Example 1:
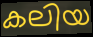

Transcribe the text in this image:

കലിയ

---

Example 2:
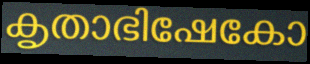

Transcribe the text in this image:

കൃതാഭിഷേകോ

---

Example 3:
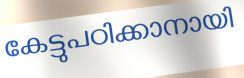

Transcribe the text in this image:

കേട്ടുപഠിക്കാനായി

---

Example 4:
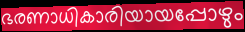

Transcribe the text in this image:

ഭരണാധികാരിയായപ്പോഴും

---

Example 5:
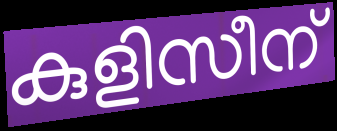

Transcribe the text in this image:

കുളിസീന്